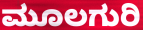
ಮೂಲಗುರಿ